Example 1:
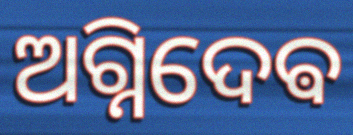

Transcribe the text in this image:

ଅଗ୍ନିଦେଵ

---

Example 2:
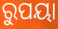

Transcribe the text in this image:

ରୁପୟା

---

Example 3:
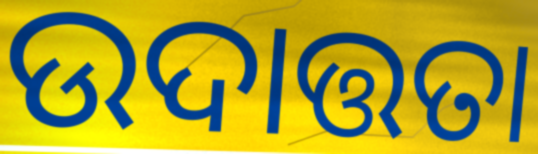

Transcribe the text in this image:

ଉଦାତ୍ତତା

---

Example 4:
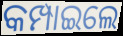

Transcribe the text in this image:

କମ୍ପାଇଲେ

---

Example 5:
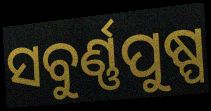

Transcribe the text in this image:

ସବୁର୍ଣ୍ଣପୁଷ୍ପ